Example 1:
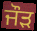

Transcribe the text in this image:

ਜੌੜ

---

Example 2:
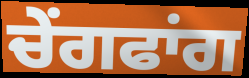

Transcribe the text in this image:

ਚੇਂਗਫਾਂਗ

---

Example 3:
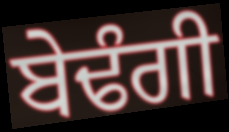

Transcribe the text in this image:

ਬੇਢੰਗੀ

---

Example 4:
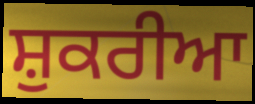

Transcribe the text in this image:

ਸ਼ੁਕਰੀਆ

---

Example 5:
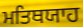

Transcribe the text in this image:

ਮਤਿਥਯਾਹ